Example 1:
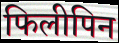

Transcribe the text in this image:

फिलीपिन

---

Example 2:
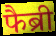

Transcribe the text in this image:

फैब्री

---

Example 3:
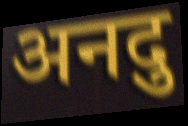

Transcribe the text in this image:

अनदु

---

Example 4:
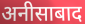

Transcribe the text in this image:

अनीसाबाद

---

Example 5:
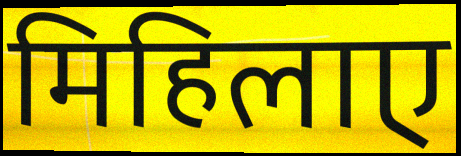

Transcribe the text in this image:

मिहिलाए